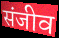
संजीव